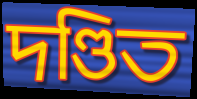
দণ্ডিত